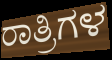
ರಾತ್ರಿಗಳ